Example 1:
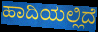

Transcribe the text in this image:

ಹಾದಿಯಲ್ಲಿದೆ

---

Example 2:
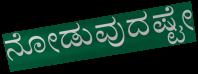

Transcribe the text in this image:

ನೋಡುವುದಷ್ಟೇ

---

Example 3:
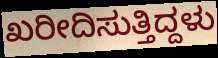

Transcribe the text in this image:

ಖರೀದಿಸುತ್ತಿದ್ದಳು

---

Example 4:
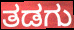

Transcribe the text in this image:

ತಡಗು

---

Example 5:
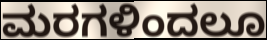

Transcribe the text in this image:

ಮರಗಳಿಂದಲೂ